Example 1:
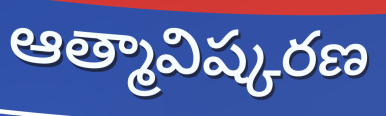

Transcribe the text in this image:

ఆత్మావిష్కరణ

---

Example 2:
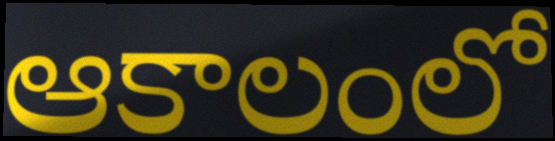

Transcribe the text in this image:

ఆకాలంలో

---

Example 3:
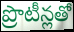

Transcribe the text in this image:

ప్రొటీన్లతో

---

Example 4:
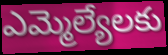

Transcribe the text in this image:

ఎమ్మెల్యేలకు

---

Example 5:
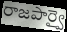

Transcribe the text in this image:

రాజపార్వై